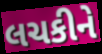
લચકીને